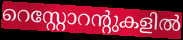
റെസ്റ്റോറന്റുകളിൽ